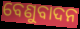
ବେଣୁବାଦନ